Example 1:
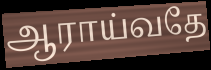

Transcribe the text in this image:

ஆராய்வதே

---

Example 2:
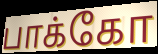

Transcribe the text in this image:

பாக்கோ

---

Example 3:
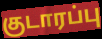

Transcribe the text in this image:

குடாரப்பு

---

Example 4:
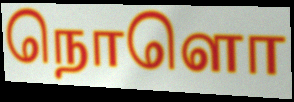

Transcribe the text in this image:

நொளொ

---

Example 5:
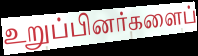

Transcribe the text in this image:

உறுப்பினர்களைப்